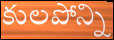
కులపోన్ని